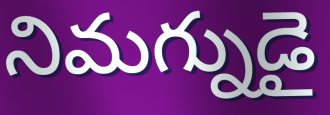
నిమగ్నుడై